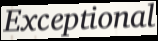
Exceptional